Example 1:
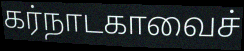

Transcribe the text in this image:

கர்நாடகாவைச்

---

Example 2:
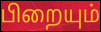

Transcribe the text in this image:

பிறையும்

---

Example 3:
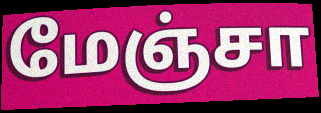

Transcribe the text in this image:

மேஞ்சா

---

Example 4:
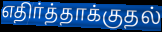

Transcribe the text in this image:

எதிர்த்தாக்குதல்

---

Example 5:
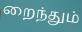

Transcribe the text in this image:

றைந்தும்